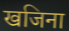
खजिना